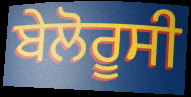
ਬੇਲੋਰੂਸੀ